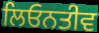
ਲਿਓਨਤੀਵ